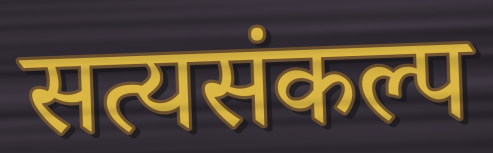
सत्यसंकल्प